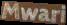
Mwari